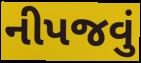
નીપજવું